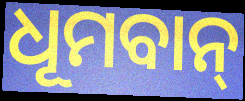
ଧୂମବାନ୍